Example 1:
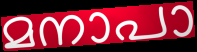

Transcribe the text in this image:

മനാപാ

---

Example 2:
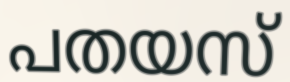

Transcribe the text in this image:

പതയസ്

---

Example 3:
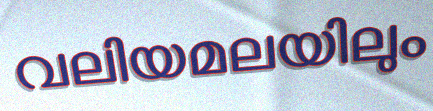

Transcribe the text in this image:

വലിയമലയിലും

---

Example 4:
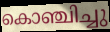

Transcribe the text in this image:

കൊഞ്ചിച്ചു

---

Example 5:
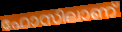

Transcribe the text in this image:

ഫോസിലാണ്